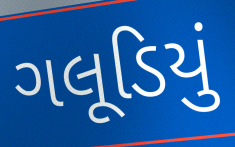
ગલૂડિયું